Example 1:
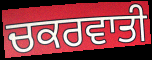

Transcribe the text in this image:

ਚਕਰਵਾਤੀ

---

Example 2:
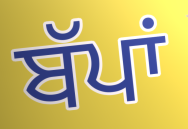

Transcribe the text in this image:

ਬੱਪਾਂ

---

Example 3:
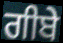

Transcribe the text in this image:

ਗੀਬੇ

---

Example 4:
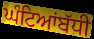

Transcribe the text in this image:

ਘੰਟਿਆਂਬੱਧੀ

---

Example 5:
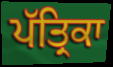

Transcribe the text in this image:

ਪੱਤ੍ਰਿਕਾ